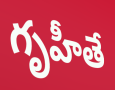
గృహీతే